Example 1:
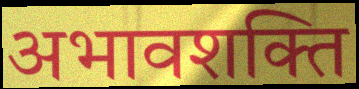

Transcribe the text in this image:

अभावशक्ति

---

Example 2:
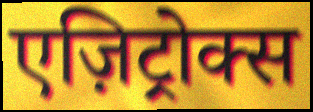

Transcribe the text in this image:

एज़िट्रोक्स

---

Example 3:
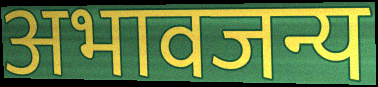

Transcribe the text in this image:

अभावजन्य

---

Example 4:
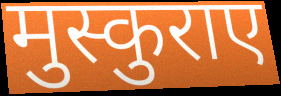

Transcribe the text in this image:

मुस्कुराए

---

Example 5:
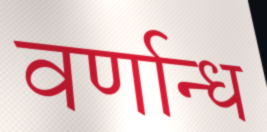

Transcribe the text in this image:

वर्णान्ध